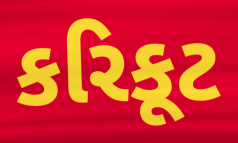
કરિકૂટ